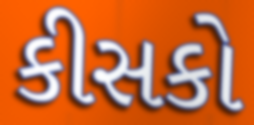
કીસકો